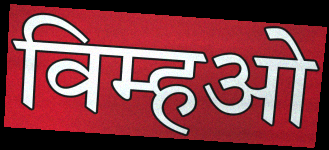
विम्हओ